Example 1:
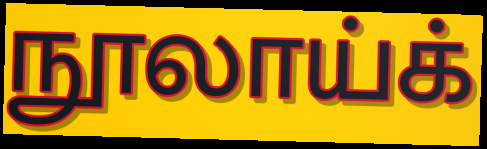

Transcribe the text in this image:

நூலாய்க்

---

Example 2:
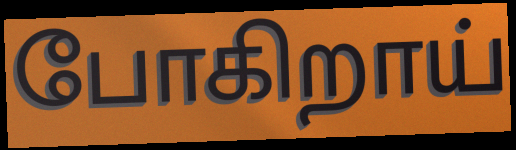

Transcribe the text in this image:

போகிறாய்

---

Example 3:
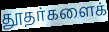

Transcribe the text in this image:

தூதர்களைக்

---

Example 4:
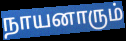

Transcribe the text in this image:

நாயனாரும்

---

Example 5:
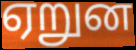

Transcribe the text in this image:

ஏறுன